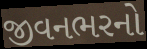
જીવનભરનો